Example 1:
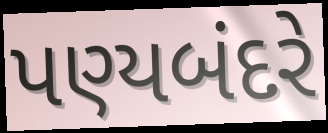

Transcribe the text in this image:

પણ્યબંદરે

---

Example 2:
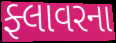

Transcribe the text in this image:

ફ્લાવરના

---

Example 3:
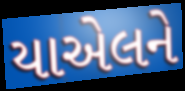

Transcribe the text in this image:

યાએલને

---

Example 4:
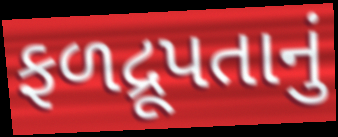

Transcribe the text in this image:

ફળદ્રૂપતાનું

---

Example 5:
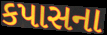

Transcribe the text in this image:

કપાસના